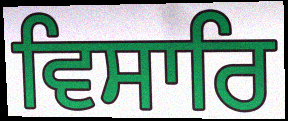
ਵਿਸਾਰਿ